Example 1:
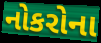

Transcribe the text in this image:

નોકરોના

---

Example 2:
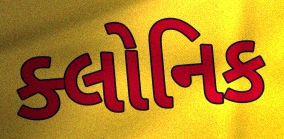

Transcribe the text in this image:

ક્લોનિક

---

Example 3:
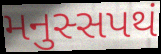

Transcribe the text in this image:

મનુસ્સપથં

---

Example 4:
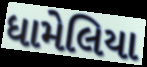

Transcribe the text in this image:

ધામેલિયા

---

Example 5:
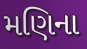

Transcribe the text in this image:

મણિના